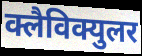
क्लैविक्युलर